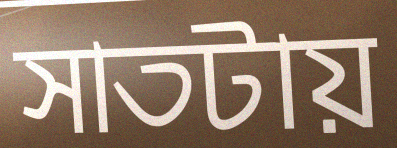
সাতটায়